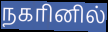
நகரினில்